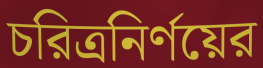
চরিত্রনির্ণয়ের